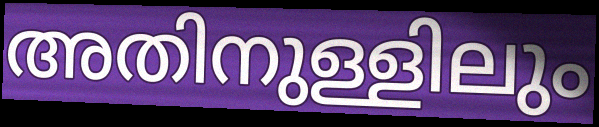
അതിനുള്ളിലും